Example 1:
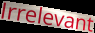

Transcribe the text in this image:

Irrelevant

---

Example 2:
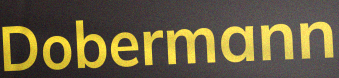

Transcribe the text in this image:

Dobermann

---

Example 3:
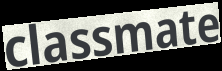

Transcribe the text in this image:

classmate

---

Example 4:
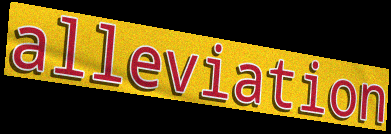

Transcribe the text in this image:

alleviation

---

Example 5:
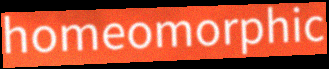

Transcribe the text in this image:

homeomorphic